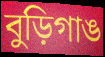
বুড়িগাঙ